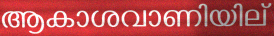
ആകാശവാണിയില്